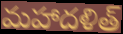
మహాదళిత్